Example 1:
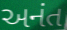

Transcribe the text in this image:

અનંત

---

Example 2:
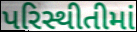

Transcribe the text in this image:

પરિસ્થીતીમાં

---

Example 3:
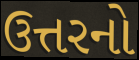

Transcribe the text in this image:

ઉત્તરનો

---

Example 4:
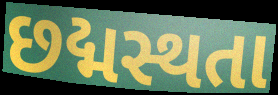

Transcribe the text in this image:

છદ્મસ્થતા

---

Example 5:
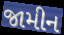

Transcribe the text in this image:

જામીન